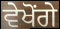
ਵੇਖੋਂਗੇ